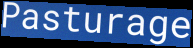
Pasturage